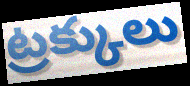
ట్రక్కులు